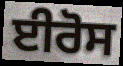
ਈਰੋਸ